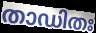
താഡിതഃ